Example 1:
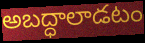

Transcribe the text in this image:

అబద్ధాలాడటం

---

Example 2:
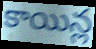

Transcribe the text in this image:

కాయిన్ల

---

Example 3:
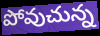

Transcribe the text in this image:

పోవుచున్న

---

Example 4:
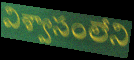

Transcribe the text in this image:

విశ్వాసంలేని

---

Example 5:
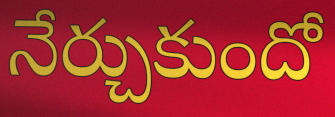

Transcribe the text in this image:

నేర్చుకుందో